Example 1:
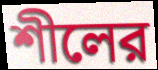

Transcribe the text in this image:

শীলের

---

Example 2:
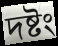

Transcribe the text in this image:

দষ্টং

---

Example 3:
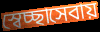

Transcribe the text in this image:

স্বেচ্ছাসেবায়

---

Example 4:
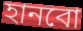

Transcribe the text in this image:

হানবো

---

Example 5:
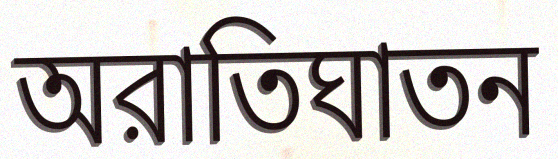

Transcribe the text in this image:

অরাতিঘাতন